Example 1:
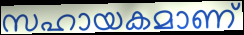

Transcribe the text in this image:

സഹായകമാണ്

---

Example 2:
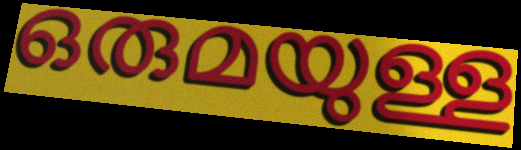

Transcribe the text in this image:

ഒരുമയുള്ള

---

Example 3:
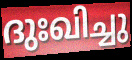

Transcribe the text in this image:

ദുഃഖിച്ചു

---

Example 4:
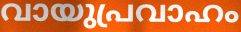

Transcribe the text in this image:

വായുപ്രവാഹം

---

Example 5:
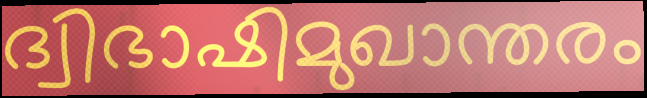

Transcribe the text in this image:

ദ്വിഭാഷിമുഖാന്തരം